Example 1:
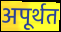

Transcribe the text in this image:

अपूर्थत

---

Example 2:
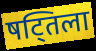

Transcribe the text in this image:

षट्तिला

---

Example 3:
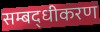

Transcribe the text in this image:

सम्बद्धीकरण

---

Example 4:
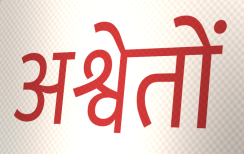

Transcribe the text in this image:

अश्वेतों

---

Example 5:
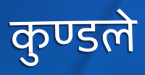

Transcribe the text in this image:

कुण्डले